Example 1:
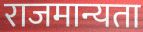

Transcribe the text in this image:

राजमान्यता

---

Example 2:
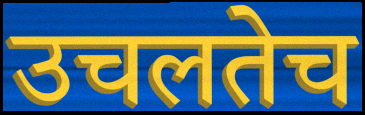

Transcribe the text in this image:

उचलतेच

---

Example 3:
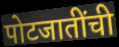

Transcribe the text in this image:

पोटजातींची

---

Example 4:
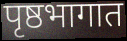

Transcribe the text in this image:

पृष्ठभागात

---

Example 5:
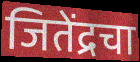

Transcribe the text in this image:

जितेंद्रचा